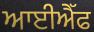
ਆਈਐੱਫ